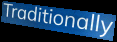
Traditionally